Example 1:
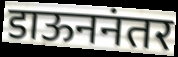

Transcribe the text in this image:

डाऊननंतर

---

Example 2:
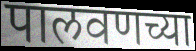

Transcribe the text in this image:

पालवणच्या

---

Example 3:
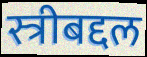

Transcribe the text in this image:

स्त्रीबद्दल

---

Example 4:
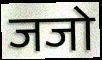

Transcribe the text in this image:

जजो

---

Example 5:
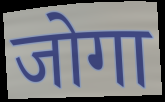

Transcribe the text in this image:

जोगा